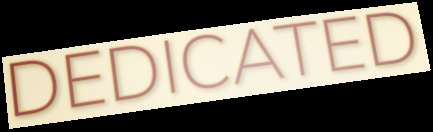
DEDICATED